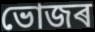
ভোজৰ